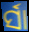
ର୍ସା